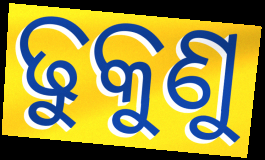
ଢୁକୁଣୁ